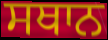
ਸਥਾਨ